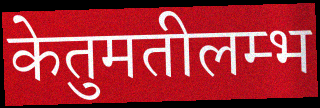
केतुमतीलम्भ